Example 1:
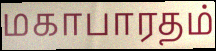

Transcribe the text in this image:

மகாபாரதம்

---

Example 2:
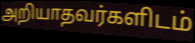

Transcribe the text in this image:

அறியாதவர்களிடம்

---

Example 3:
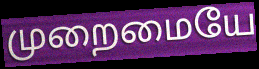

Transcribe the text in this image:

முறைமையே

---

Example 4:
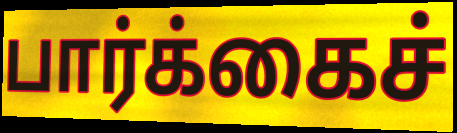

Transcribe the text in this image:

பார்க்கைச்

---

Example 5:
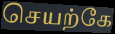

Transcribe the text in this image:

செயற்கே